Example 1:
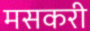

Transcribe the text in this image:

मसकरी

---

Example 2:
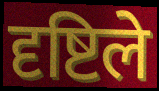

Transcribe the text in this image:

दृष्टिले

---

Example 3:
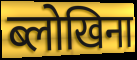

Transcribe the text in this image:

ब्लोखिना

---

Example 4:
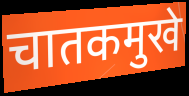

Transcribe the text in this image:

चातकमुखे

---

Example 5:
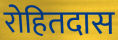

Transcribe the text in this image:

रोहितदास